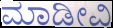
ಮಾಡೀವಿ